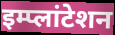
इम्प्लांटेशन